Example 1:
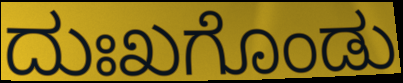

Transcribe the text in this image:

ದುಃಖಗೊಂಡು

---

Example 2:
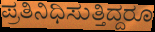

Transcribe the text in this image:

ಪ್ರತಿನಿಧಿಸುತ್ತಿದ್ದರೂ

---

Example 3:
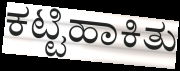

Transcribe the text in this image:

ಕಟ್ಟಿಹಾಕಿತು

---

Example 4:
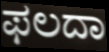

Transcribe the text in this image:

ಫಲದಾ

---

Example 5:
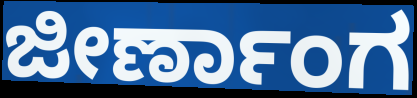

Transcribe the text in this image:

ಜೀರ್ಣಾಂಗ